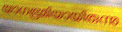
യാഗഭൂമിയായിരുന്നു